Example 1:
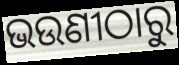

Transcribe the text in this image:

ଭଉଣୀଠାରୁ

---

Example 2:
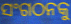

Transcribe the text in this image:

ସଂଗଠନକୁ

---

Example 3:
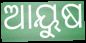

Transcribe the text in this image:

ଆୟୁଷ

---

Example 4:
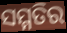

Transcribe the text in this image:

ସମ୍ମତିର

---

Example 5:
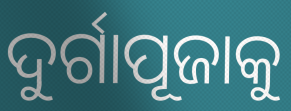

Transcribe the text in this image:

ଦୁର୍ଗାପୂଜାକୁ